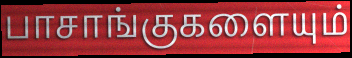
பாசாங்குகளையும்